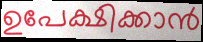
ഉപേക്ഷിക്കാൻ